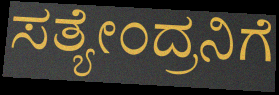
ಸತ್ಯೇಂದ್ರನಿಗೆ